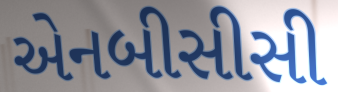
એનબીસીસી